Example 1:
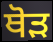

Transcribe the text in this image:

ਥੋੜ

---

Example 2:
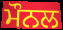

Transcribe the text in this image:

ਮੌਨਲ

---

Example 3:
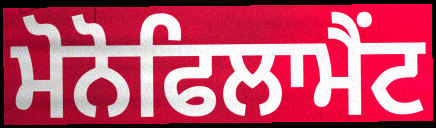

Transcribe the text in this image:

ਮੋਨੋਫਿਲਾਮੈਂਟ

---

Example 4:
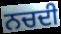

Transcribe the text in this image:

ਨਚਦੀ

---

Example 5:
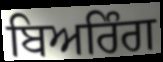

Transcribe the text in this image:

ਬਿਅਰਿੰਗ